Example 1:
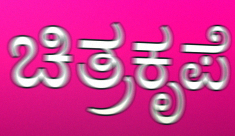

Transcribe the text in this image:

ಚಿತ್ರಕೃಪೆ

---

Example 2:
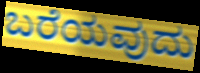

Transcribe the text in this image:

ಬರೆಯವುದು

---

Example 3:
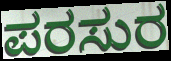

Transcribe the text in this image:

ಪರಸುರ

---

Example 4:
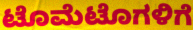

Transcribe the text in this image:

ಟೊಮೆಟೊಗಳಿಗೆ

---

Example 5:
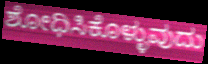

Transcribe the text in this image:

ಶೋಧಿಸಿಕೊಳ್ಳುವುದು